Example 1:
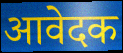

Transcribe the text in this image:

आवेदक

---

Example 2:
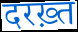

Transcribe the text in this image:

दरख़्त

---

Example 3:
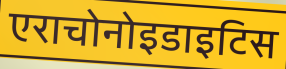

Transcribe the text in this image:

एराचोनोइडाइटिस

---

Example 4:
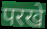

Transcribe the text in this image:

परखे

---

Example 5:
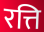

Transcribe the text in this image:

रत्ति